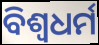
ବିଶ୍ବଧର୍ମ